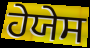
ਹੇਯੇਸ